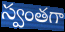
స్వంతగా